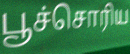
பூச்சொரிய